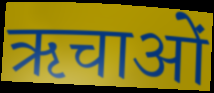
ऋचाओं